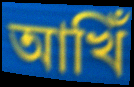
আখিঁ